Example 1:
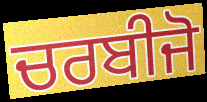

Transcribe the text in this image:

ਚਰਬੀਜੋ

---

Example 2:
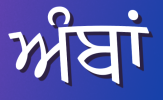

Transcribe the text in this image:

ਅੰਬਾਂ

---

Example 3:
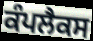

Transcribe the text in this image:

ਕੰਪਲੈਕਸ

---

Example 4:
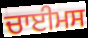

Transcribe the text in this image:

ਚਾਈਮਸ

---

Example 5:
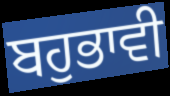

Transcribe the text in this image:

ਬਹੁਭਾਵੀ